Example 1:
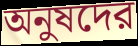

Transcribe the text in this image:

অনুষদের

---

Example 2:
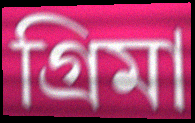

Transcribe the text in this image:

গ্রিমা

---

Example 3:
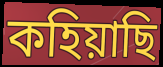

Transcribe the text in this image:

কহিয়াছি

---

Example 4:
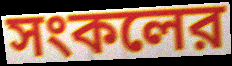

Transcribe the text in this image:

সংকলের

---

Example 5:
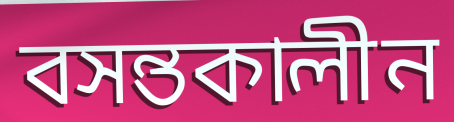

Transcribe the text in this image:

বসন্তকালীন